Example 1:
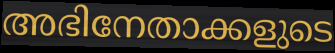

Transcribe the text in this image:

അഭിനേതാക്കളുടെ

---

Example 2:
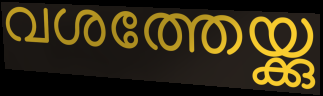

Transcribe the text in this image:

വശത്തേയ്ക്കു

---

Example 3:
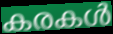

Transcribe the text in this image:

കരകൾ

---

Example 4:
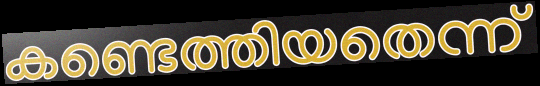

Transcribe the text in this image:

കണ്ടെത്തിയതെന്ന്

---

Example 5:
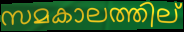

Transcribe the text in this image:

സമകാലത്തില്